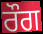
ਰੌਗ